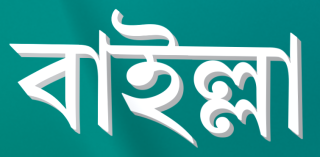
বাইল্লা